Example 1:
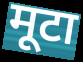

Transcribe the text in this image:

मूटा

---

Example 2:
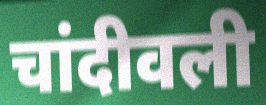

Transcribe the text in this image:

चांदीवली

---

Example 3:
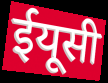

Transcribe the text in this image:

ईयूसी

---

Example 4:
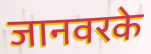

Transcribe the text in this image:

जानवरके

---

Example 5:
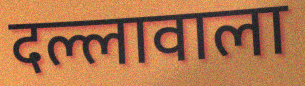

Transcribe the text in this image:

दल्लावाला